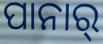
ପାନାର୍